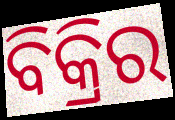
ବିକ୍ରିର